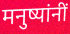
मनुष्यांनीं